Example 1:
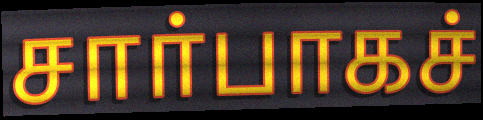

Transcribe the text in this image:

சார்பாகச்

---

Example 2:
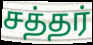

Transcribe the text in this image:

சத்தர்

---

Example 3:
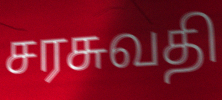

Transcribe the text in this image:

சரசுவதி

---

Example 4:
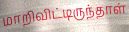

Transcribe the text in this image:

மாறிவிட்டிருந்தாள்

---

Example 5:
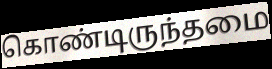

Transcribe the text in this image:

கொண்டிருந்தமை